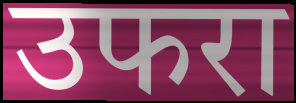
उफरा